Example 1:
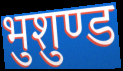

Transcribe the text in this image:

भुशुण्ड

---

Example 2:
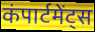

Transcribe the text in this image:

कंपार्टमेंट्स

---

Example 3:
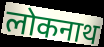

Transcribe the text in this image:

लोकनाथ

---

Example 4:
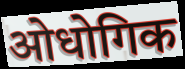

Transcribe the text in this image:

ओधोगिक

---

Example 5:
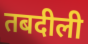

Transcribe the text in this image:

तबदीली